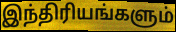
இந்திரியங்களும்